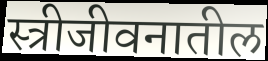
स्त्रीजीवनातील